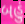
બહું